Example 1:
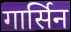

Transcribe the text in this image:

गार्सिन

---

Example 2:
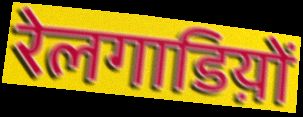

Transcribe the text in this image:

रेलगाडिय़ों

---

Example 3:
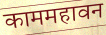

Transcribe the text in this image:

काममहावन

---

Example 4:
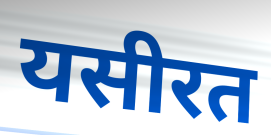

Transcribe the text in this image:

यसीरत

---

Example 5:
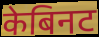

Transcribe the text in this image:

केबिनट